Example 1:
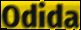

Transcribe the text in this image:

Odida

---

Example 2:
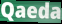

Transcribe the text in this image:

Qaeda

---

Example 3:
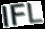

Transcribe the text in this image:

IFL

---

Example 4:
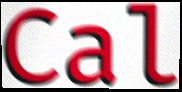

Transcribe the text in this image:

Cal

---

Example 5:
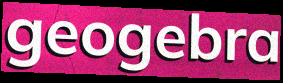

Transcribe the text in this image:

geogebra